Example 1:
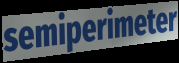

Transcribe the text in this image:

semiperimeter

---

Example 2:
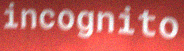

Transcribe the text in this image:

incognito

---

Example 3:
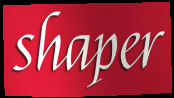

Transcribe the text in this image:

shaper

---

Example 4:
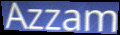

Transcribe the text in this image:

Azzam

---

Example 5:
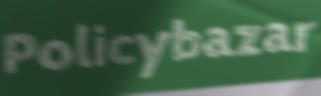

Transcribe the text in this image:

Policybazar